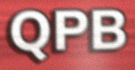
QPB